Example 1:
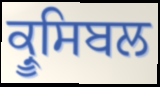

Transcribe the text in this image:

ਕ੍ਰੂਸਿਬਲ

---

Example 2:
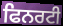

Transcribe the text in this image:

ਫਿਨਰਟੀ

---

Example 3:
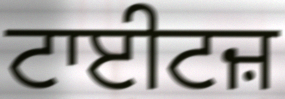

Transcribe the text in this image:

ਟਾਈਟਜ਼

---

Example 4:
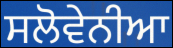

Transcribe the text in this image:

ਸਲੋਵੇਨੀਆ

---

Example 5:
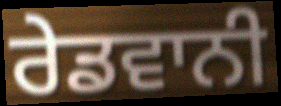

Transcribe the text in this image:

ਰੇਡਵਾਨੀ